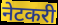
नेटकरी